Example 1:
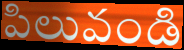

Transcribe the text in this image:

పిలువండి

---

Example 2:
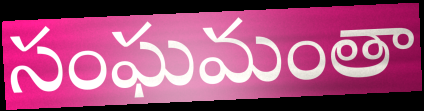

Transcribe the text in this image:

సంఘమంతా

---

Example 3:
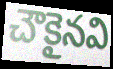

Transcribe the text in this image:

చౌకైనవి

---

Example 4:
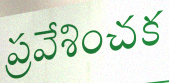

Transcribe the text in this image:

ప్రవేశించక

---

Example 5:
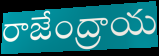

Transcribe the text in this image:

రాజేంద్రాయ